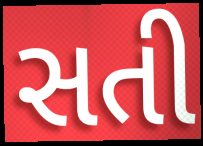
સતી